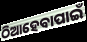
ଠିଆହେବାପାଇଁ